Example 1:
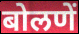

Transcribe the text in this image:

बोलणें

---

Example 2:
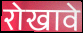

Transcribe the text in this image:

रोखावे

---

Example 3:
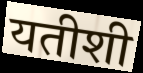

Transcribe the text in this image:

यतीशी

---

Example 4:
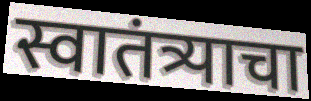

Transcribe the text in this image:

स्‍वातंत्र्याचा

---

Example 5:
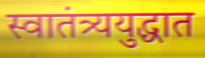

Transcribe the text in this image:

स्वातंत्र्ययुद्धात